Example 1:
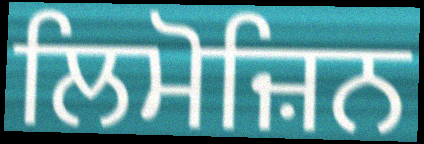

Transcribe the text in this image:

ਲਿਮੋਜ਼ਿਨ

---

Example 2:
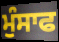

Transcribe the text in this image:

ਮੁੰਸਾਫ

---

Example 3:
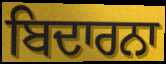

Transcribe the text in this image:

ਬਿਦਾਰਨਾ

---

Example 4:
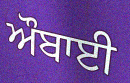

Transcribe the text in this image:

ਔਬਾਈ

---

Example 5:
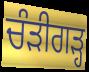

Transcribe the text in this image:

ਚੰੜੀਗੜ੍ਹ